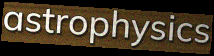
astrophysics